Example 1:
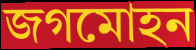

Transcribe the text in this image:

জগমোহন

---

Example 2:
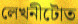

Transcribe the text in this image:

লেখনীটোত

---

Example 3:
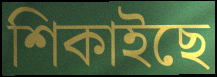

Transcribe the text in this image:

শিকাইছে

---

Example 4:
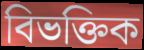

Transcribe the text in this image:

বিভক্তিক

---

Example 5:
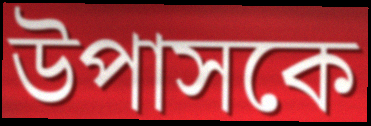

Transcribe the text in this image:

উপাসকে